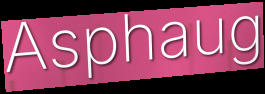
Asphaug